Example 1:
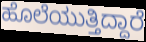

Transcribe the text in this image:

ಹೊಲೆಯುತ್ತಿದ್ದಾರೆ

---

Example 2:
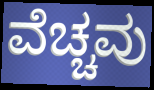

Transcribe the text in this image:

ವೆಚ್ಚವು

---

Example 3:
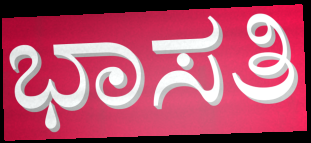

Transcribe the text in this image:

ಭಾಸತಿ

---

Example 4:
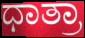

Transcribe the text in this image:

ಧಾತ್ರಾ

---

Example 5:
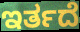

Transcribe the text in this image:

ಇರ್ತದೆ